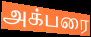
அக்பரை